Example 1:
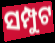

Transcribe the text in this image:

ସମ୍ପୁଟ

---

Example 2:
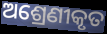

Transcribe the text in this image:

ଅଶ୍ରେଣୀକୃତ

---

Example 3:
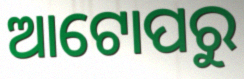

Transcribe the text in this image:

ଆଟୋପରୁ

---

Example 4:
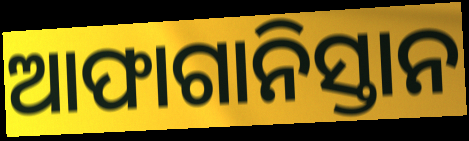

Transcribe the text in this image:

ଆଫାଗାନିସ୍ତାନ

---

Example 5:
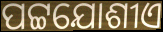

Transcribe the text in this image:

ପଟ୍ଟଯୋଶୀଏ